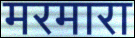
मरमारा